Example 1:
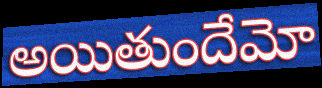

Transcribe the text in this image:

అయితుందేమో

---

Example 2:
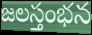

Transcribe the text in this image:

జలస్తంభన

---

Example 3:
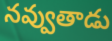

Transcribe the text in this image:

నవ్వుతాడు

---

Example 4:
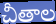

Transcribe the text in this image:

చీతాల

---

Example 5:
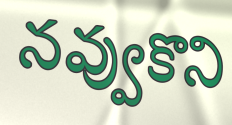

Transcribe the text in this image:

నవ్వుకొని